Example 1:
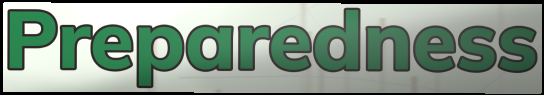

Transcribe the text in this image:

Preparedness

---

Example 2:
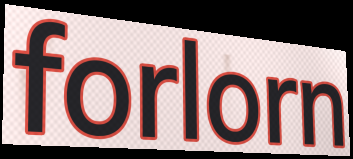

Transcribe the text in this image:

forlorn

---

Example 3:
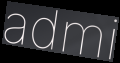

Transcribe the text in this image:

admi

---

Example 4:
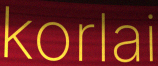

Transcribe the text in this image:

korlai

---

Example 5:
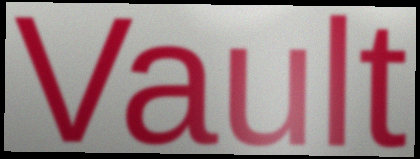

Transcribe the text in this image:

Vault